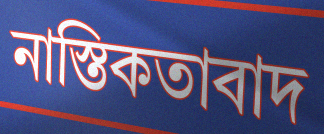
নাস্তিকতাবাদ